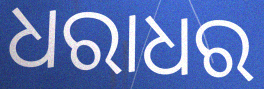
ଧରାଧର